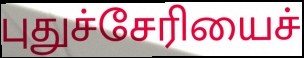
புதுச்சேரியைச்